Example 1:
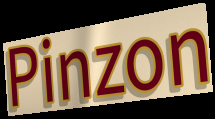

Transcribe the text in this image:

Pinzon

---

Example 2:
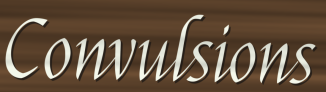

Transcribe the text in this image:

Convulsions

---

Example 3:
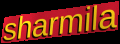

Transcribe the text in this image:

sharmila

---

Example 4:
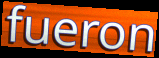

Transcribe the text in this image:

fueron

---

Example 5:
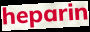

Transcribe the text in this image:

heparin